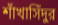
শাঁখাসিঁদুর